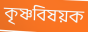
কৃষ্ণবিষয়ক